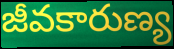
జీవకారుణ్య